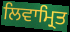
ਲਿਵਾਮ੍ਰਿਤ